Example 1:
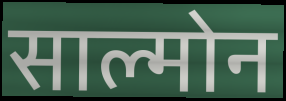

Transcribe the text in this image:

साल्मोन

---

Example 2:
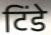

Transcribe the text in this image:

टिंडे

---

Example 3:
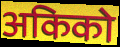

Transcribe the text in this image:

अकिको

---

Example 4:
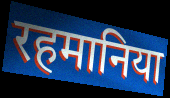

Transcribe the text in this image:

रहमानिया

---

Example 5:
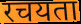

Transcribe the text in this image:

रचयता